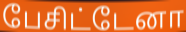
பேசிட்டேனா